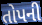
તોપની